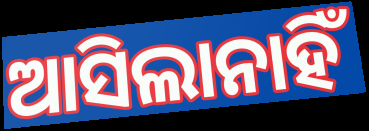
ଆସିଲାନାହିଁ